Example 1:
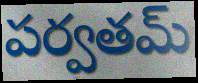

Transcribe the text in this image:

పర్వతమ్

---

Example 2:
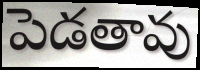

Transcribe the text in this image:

పెడతావు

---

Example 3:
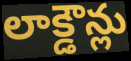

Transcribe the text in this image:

లాక్డౌన్లు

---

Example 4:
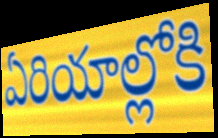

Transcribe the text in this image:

ఏరియాల్లోకి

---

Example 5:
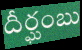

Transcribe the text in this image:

దీర్ఘంబు